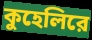
কুহেলিরে